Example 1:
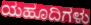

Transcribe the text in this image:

ಯಹೂದಿಗಳು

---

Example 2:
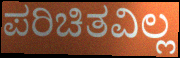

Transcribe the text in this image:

ಪರಿಚಿತವಿಲ್ಲ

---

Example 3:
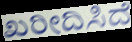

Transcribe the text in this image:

ಖರೀದಿಸಿದೆ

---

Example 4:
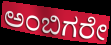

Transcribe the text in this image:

ಅಂಬಿಗರೇ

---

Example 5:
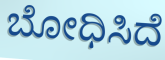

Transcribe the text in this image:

ಬೋಧಿಸಿದೆ